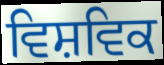
ਵਿਸ਼ਵਿਕ